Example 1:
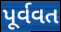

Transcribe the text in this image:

પૂર્વવત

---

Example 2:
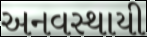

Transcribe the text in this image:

અનવસ્થાયી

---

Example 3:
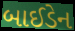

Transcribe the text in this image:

બાઈડેન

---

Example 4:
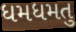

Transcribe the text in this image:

ધમધમતુ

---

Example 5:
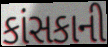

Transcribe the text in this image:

કાંસકાની